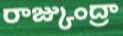
రాజ్కుంద్రా